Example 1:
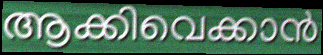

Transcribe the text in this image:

ആക്കിവെക്കാൻ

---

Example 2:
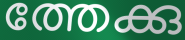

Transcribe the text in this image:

ത്തേക്കു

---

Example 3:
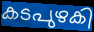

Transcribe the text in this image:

കടപുഴകി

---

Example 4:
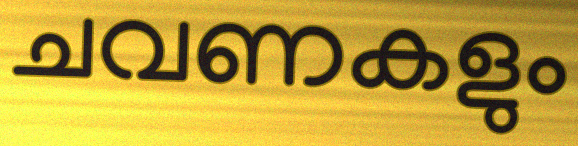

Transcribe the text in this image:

ചവണകളും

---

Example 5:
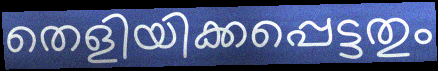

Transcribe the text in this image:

തെളിയിക്കപ്പെട്ടതും